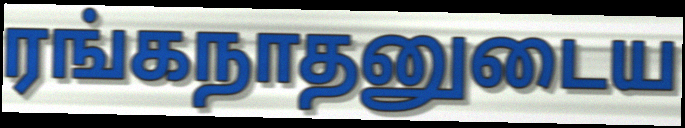
ரங்கநாதனுடைய